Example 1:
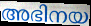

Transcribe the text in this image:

അഭിനയ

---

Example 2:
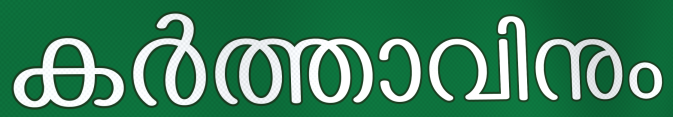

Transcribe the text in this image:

കർത്താവിനും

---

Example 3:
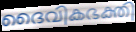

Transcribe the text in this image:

ദൈവികഭക്തി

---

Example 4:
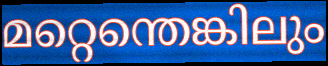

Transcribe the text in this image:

മറ്റെന്തെങ്കിലും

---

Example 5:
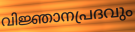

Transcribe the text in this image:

വിജ്ഞാനപ്രദവും